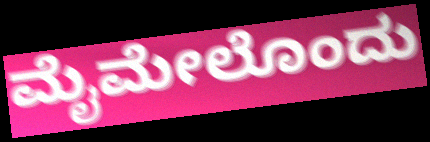
ಮೈಮೇಲೊಂದು